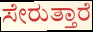
ಸೇರುತ್ತಾರೆ